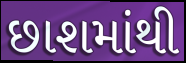
છાશમાંથી